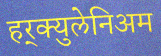
हर्क्युलेनिअम